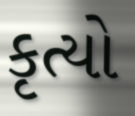
કૃત્યો